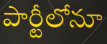
పార్టీలోనూ